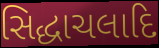
સિદ્ધાચલાદિ